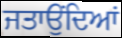
ਜਤਾਉੰਦਿਆਂ